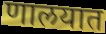
णालयात